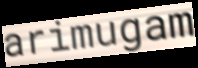
arimugam